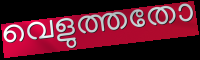
വെളുത്തതോ